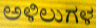
ಅಳಿಲುಗಳ